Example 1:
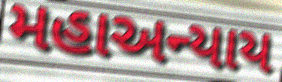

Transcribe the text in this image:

મહાઅન્યાય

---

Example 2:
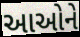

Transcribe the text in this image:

આઓને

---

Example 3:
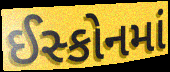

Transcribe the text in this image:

ઈસ્કોનમાં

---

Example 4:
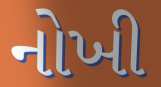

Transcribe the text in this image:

નોખી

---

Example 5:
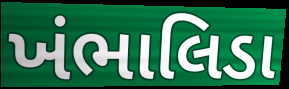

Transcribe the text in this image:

ખંભાલિડા